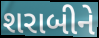
શરાબીને